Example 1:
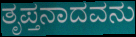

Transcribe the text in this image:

ತೃಪ್ತನಾದವನು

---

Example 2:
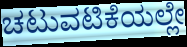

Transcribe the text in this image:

ಚಟುವಟಿಕೆಯಲ್ಲೇ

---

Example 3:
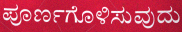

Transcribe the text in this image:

ಪೂರ್ಣಗೊಳಿಸುವುದು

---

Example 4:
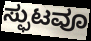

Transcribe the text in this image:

ಸ್ಫುಟವೂ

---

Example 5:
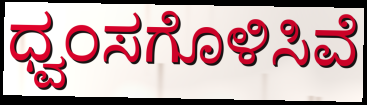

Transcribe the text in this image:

ಧ್ವಂಸಗೊಳಿಸಿವೆ